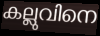
കല്ലുവിനെ